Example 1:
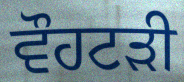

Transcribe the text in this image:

ਵੌਹਟੜੀ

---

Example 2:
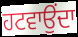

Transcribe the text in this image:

ਹਟਵਾਉਂਦਾ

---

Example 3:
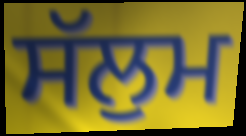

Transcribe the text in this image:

ਸੱਲੁਮ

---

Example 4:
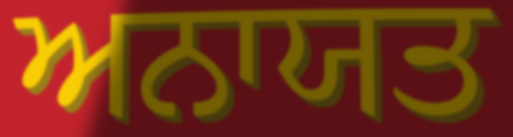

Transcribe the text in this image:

ਅਨਾਯਤ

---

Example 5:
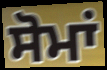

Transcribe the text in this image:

ਸੋਮਾਂ